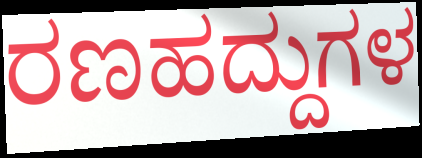
ರಣಹದ್ದುಗಳ